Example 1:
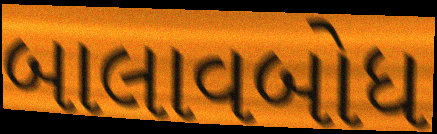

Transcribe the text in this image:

બાલાવબોધ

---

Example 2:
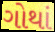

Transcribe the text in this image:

ગોથાં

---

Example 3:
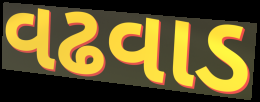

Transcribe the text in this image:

વઢવાડ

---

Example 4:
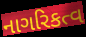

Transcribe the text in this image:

નાગરિકત્વ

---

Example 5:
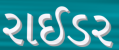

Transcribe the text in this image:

રાઈડર